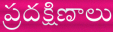
ప్రదక్షిణాలు